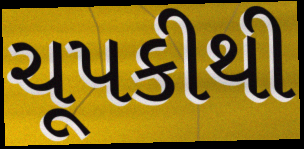
ચૂપકીથી